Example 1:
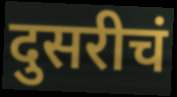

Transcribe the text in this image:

दुसरीचं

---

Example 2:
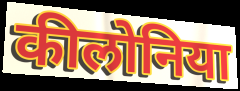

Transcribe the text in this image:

कीलोनिया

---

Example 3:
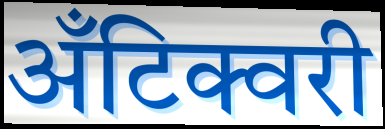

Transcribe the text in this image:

अँटिक्वरी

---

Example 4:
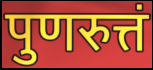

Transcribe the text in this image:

पुणरुत्तं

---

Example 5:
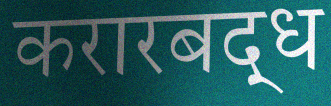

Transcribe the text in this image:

करारबद्ध